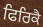
ਫਿਰਿਕੈ